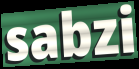
sabzi